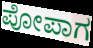
ಪೋಪಾಗ